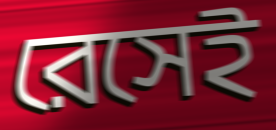
রেসেই